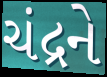
ચંદ્રને